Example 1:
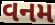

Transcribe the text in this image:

વનમ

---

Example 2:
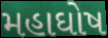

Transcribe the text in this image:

મહાઘોષ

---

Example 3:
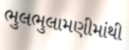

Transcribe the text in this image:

ભુલભુલામણીમાંથી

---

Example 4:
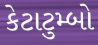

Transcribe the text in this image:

કેટાટુમ્બો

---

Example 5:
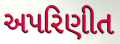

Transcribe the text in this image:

અપરિણીત